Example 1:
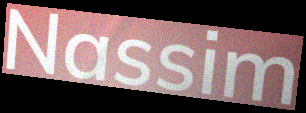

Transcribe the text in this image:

Nassim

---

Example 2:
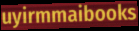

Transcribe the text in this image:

uyirmmaibooks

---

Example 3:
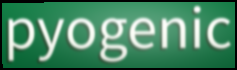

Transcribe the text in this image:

pyogenic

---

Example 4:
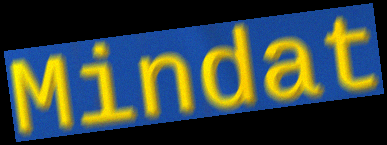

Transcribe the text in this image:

Mindat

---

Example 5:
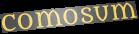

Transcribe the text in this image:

comosum